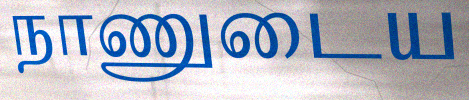
நாணுடைய